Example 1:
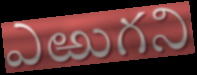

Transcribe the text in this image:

ఎఱుగని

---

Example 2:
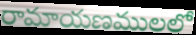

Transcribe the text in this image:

రామాయణములలో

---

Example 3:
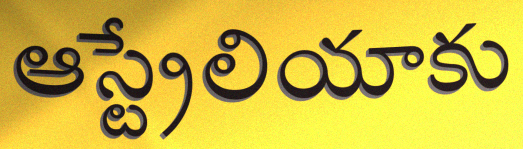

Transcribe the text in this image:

ఆస్ట్రేలియాకు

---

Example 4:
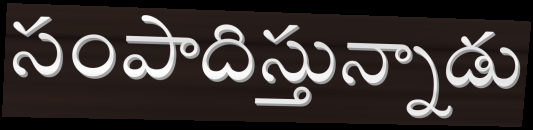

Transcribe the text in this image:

సంపాదిస్తున్నాడు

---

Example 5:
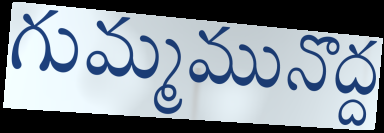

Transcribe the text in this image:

గుమ్మమునొద్ద